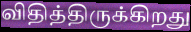
விதித்திருக்கிறது